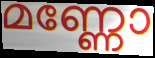
മണ്ണോ